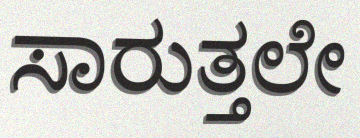
ಸಾರುತ್ತಲೇ